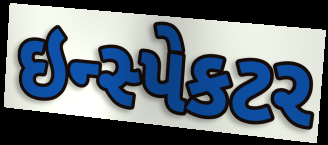
ઇન્સ્પેકટર